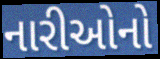
નારીઓનો